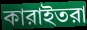
কারাইতরা